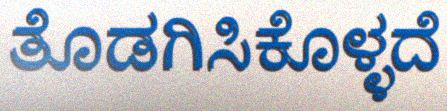
ತೊಡಗಿಸಿಕೊಳ್ಳದೆ